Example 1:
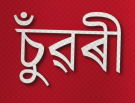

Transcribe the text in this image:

চুঁৱৰী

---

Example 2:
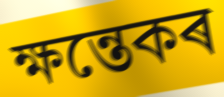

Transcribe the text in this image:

ক্ষন্তেকৰ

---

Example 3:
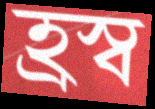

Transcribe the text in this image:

হ্ৰস্ব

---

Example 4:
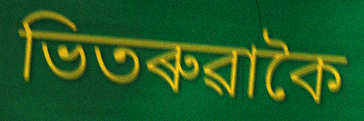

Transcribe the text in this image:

ভিতৰুৱাকৈ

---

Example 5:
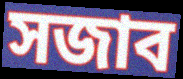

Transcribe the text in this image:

সজাব